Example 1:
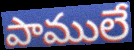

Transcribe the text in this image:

పాములే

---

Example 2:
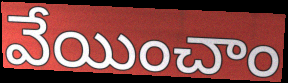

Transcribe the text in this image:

వేయించాం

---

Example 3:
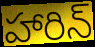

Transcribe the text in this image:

హారిన్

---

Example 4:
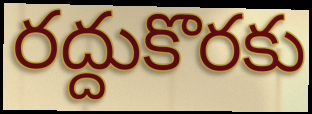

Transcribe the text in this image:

రద్దుకొరకు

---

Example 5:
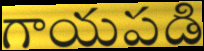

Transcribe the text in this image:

గాయపడి